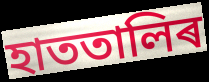
হাততালিৰ